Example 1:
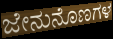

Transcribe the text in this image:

ಜೇನುನೊಣಗಳ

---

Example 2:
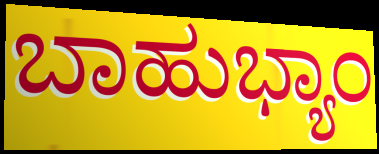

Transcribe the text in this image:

ಬಾಹುಭ್ಯಾಂ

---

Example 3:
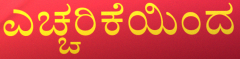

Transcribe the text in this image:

ಎಚ್ಚರಿಕೆಯಿಂದ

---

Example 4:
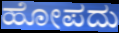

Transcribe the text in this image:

ಹೋಪದು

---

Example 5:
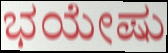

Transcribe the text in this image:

ಭಯೇಷು